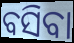
ବସିବା